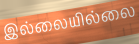
இல்லையில்லை